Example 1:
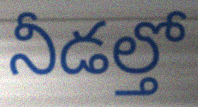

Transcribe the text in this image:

నీడల్తో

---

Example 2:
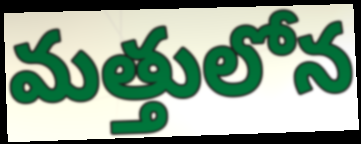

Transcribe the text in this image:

మత్తులోన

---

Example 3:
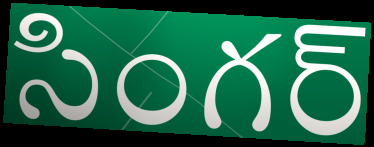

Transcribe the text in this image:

సింగర్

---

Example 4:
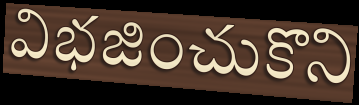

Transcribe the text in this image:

విభజించుకొని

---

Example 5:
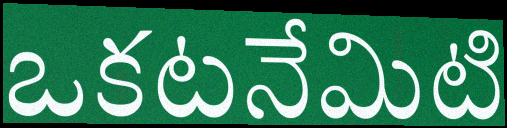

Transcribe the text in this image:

ఒకటనేమిటి